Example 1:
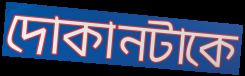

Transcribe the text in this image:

দোকানটাকে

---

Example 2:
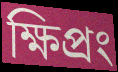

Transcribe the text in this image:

ক্ষিপ্রং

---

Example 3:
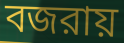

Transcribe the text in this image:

বজরায়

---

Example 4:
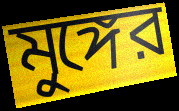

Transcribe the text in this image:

মুঙ্গের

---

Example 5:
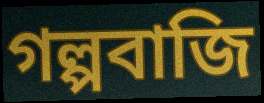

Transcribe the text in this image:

গল্পবাজি